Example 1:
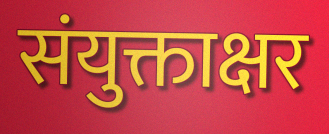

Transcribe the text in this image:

संयुक्ताक्षर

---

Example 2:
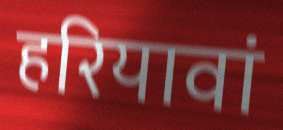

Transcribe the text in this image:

हरियावां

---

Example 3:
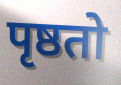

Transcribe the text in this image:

पृष्ठतो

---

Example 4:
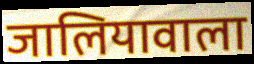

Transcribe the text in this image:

जालियावाला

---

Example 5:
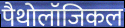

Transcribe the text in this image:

पैथोलॉजिकल